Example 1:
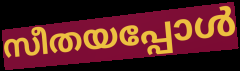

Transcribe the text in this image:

സീതയപ്പോൾ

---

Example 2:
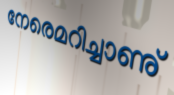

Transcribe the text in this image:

നേരെമറിച്ചാണു്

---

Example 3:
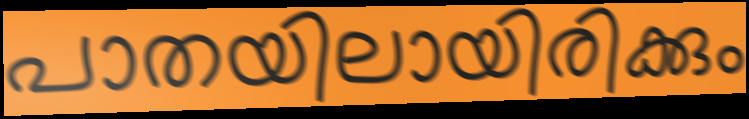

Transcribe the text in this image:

പാതയിലായിരിക്കും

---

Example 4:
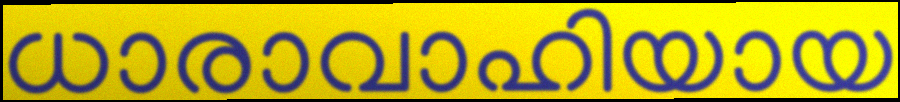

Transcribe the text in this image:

ധാരാവാഹിയായ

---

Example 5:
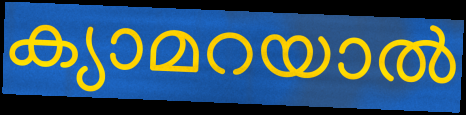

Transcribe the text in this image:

ക്യാമറയാൽ